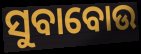
ସୁବାବୋଉ